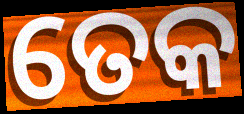
ତେକ